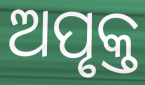
ଅପୃକ୍ତ